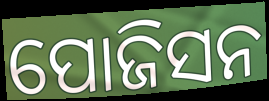
ପୋଜିସନ